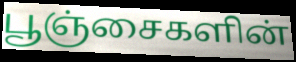
பூஞ்சைகளின்